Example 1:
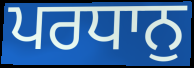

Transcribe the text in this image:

ਪਰਧਾਨੁ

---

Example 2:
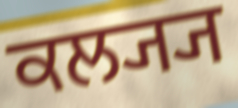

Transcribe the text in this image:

ਕਲ੍ਯ੍ਯ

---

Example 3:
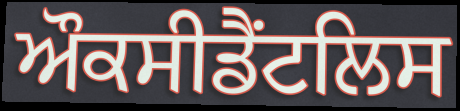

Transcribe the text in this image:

ਔਕਸੀਡੈਂਟਲਿਸ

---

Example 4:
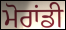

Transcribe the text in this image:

ਮੋਰਾਂਡੀ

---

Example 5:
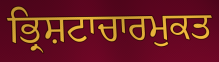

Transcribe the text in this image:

ਭ੍ਰਿਸ਼ਟਾਚਾਰਮੁਕਤ